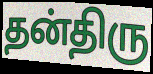
தன்திரு